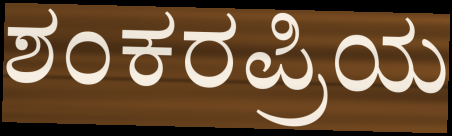
ಶಂಕರಪ್ರಿಯ